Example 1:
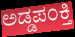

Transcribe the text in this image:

ಅಡ್ಡಪಂಕ್ತಿ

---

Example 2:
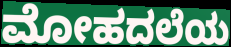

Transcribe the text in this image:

ಮೋಹದಲೆಯ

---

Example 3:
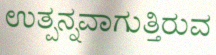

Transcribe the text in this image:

ಉತ್ಪನ್ನವಾಗುತ್ತಿರುವ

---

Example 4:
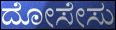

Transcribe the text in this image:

ದೋಸೇಸು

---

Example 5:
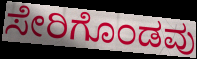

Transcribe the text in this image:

ಸೇರಿಗೊಂಡವು